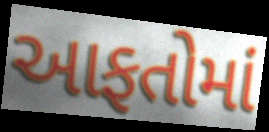
આફતોમાં